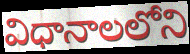
విధానాలలోని